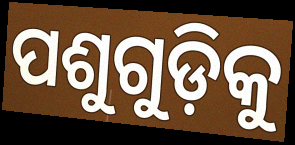
ପଶୁଗୁଡ଼ିକୁ